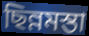
ছিন্নমস্তা